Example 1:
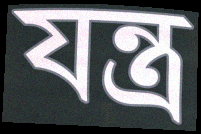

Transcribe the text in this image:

যন্ত্ৰ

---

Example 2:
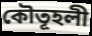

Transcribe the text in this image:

কৌতূহলী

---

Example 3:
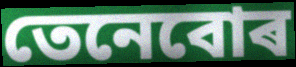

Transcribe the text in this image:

তেনেবোৰ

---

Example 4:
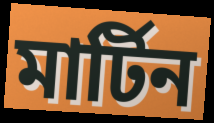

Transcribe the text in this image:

মাৰ্টিন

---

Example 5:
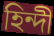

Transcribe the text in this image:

হিন্দী